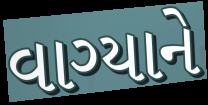
વાગ્યાને